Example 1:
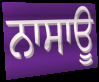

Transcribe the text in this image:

ਨਾਸਾਊ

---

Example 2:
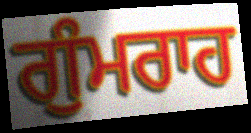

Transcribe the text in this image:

ਗੁੰਮਰਾਹ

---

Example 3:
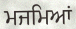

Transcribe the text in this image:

ਮਜਮਿਆਂ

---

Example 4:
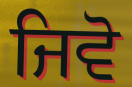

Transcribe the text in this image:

ਜਿਵੋ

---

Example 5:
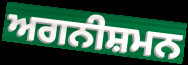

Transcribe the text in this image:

ਅਗਨੀਸ਼ਮਨ